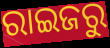
ରାଇଜରୁ